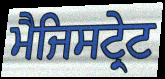
ਮੈਜਿਸਟ੍ਰੇਟ